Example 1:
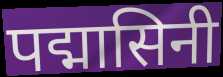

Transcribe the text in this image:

पद्मासिनी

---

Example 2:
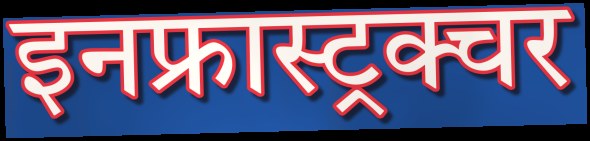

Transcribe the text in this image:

इनफ्रास्ट्रक्चर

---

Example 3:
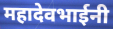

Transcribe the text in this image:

महादेवभाईनी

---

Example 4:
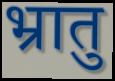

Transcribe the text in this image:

भ्रातु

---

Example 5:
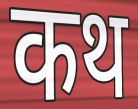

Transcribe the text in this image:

कथ